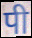
पी